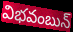
విభవంబున్